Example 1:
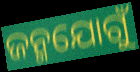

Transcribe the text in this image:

ଜନ୍ମଯୋଗୁଁ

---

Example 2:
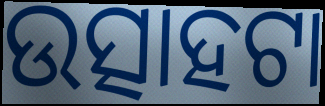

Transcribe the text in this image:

ଉତ୍ସାହଟା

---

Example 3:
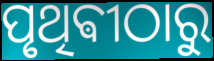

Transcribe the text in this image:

ପୃଥିଵୀଠାରୁ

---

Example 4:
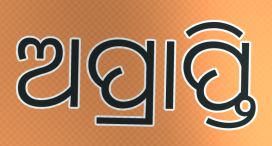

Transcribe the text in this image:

ଅପ୍ରାପ୍ତି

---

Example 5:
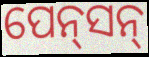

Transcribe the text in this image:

ପେନ୍‍ସନ୍